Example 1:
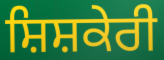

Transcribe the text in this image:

ਸ਼ਿਸ਼ਕੇਰੀ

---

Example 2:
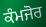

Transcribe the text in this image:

ਕੰਮਜੋਰ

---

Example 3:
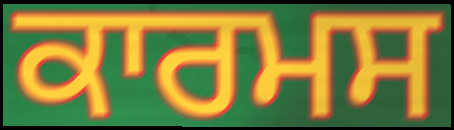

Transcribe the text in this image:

ਕਾਰਮਸ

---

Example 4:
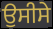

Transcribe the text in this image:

ਉਸੀਸੇ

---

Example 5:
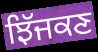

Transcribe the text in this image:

ਝਿੱਜਕਣ